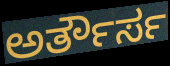
ಅರ್ತೌರ್ಸ